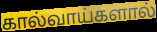
கால்வாய்களால்